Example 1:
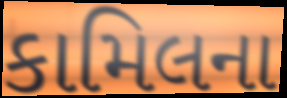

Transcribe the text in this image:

કામિલના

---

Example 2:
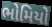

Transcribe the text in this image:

ભોમિયો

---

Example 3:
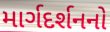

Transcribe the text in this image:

માર્ગદર્શનનો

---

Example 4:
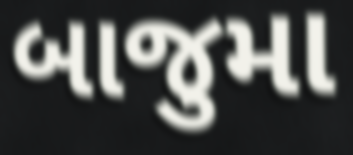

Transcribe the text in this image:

બાજુમા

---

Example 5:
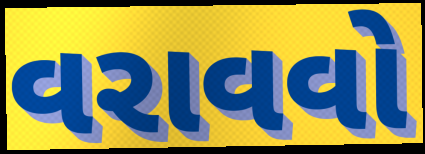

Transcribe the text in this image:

વરાવવો